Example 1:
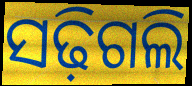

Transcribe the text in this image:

ସଢ଼ିଗଲି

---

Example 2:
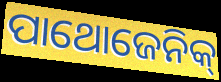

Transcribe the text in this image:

ପାଥୋଜେନିକ୍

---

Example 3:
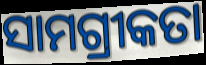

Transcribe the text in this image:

ସାମଗ୍ରୀକତା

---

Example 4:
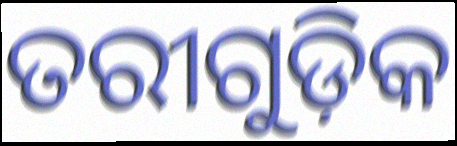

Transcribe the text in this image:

ତରୀଗୁଡ଼ିକ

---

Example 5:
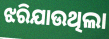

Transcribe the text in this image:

ଝରିଯାଉଥିଲା